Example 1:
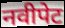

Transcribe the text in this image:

नवीपेट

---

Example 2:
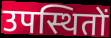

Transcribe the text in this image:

उपस्थितों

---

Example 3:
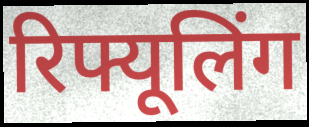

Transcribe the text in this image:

रिफ्यूलिंग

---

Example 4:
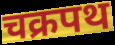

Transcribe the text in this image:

चक्रपथ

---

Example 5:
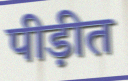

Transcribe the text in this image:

पीड़ीत